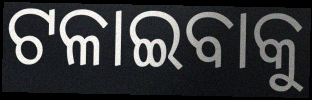
ଟଳାଇବାକୁ